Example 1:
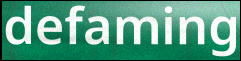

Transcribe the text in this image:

defaming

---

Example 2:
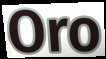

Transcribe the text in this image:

Oro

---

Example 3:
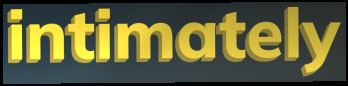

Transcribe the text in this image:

intimately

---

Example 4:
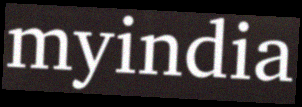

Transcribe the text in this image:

myindia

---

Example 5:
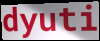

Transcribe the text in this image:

dyuti